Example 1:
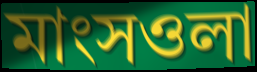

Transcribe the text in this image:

মাংসওলা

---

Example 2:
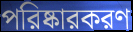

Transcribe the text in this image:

পরিষ্কারকরণ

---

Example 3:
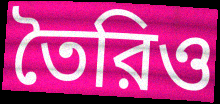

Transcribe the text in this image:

তৈরিও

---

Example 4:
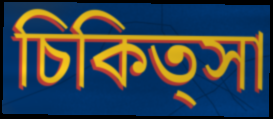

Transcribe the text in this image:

চিকিত্সা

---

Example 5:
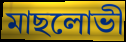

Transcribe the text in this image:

মাছলোভী